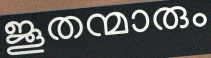
ജൂതന്മാരും